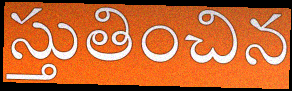
స్తుతించిన